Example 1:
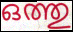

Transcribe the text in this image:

ഒത്തു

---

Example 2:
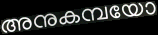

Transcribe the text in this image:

അനുകമ്പയോ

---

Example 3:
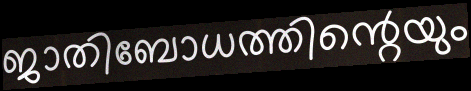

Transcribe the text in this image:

ജാതിബോധത്തിന്റെയും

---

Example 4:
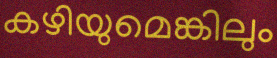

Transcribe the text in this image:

കഴിയുമെങ്കിലും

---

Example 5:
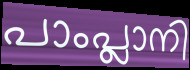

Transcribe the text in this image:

പാംപ്ലാനി